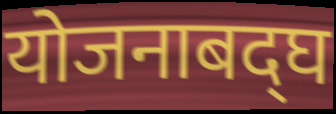
योजनाबद्घ